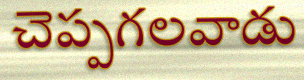
చెప్పగలవాడు